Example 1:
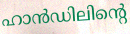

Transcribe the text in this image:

ഹാൻഡിലിന്റെ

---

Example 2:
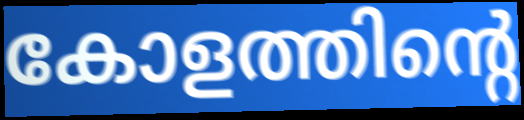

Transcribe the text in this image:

കോളത്തിന്റെ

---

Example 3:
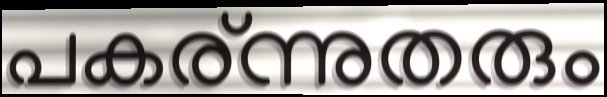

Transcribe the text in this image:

പകര്ന്നുതരും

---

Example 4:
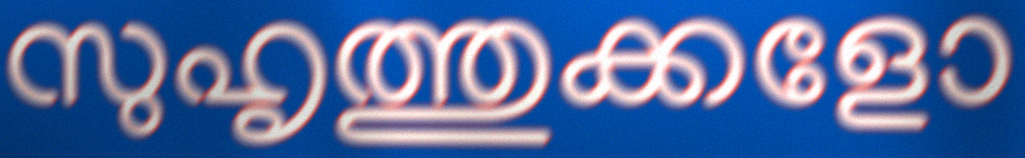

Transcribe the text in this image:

സുഹൃത്തുക്കളോ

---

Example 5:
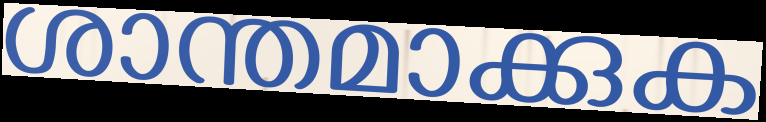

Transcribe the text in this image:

ശാന്തമാക്കുക